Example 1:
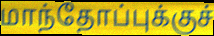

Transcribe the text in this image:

மாந்தோப்புக்குச்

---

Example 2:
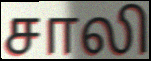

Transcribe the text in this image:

சாலி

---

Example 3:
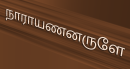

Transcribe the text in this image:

நாராயணனருளே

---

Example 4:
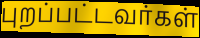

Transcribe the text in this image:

புறப்பட்டவர்கள்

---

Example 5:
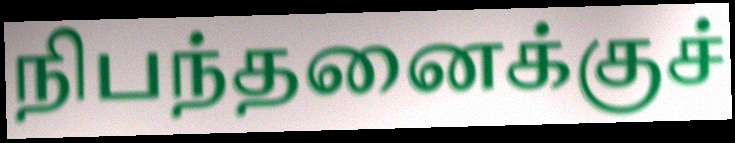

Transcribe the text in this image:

நிபந்தனைக்குச்